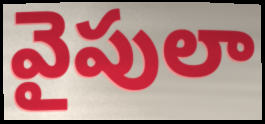
వైపులా